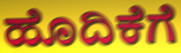
ಹೊದಿಕೆಗೆ